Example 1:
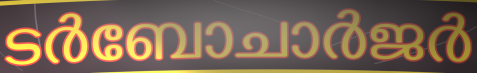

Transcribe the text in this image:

ടർബോചാർജർ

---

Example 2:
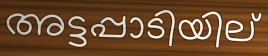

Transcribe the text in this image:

അട്ടപ്പാടിയില്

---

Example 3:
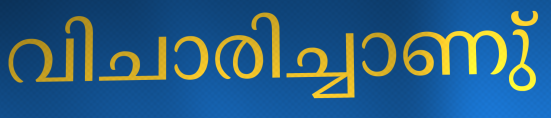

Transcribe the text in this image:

വിചാരിച്ചാണു്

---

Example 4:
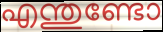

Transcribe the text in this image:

എന്തുണ്ടോ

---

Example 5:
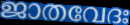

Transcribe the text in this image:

ജാതവേദഃ